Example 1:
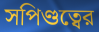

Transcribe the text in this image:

সপিণ্ডত্বের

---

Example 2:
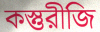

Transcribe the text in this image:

কস্তুরীজি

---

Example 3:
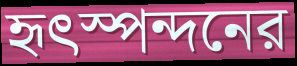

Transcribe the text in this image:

হৃৎস্পন্দনের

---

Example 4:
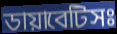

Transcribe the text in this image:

ডায়াবেটিসঃ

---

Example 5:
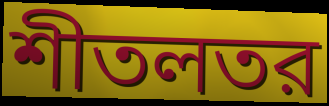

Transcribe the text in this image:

শীতলতর